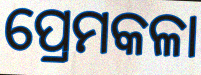
ପ୍ରେମକଳା